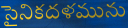
సైనికదళమును